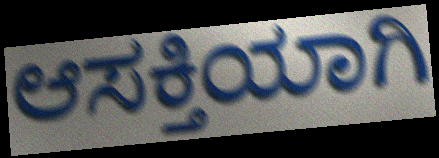
ಆಸಕ್ತಿಯಾಗಿ